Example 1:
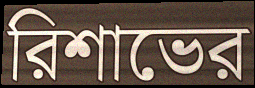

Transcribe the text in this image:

রিশাভের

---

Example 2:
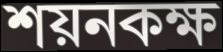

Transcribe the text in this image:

শয়নকক্ষ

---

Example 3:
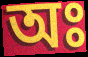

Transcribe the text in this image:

অঃ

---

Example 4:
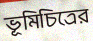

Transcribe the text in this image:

ভূমিচিত্রের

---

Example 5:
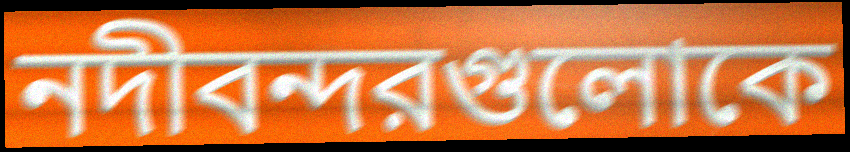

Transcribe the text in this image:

নদীবন্দরগুলোকে